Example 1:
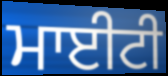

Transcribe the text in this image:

ਮਾਈਟੀ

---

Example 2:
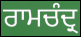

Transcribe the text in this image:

ਰਾਮਚੰਦ੍ਰ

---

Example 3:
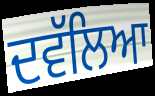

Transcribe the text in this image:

ਦਵੱਲਿਆ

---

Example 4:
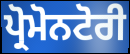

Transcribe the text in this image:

ਪ੍ਰੋਮੋਨਟੋਰੀ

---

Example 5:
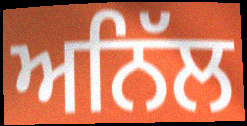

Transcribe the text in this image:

ਅਨਿੱਲ